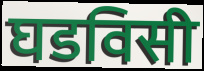
घडविसी